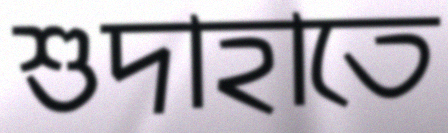
শুদাহাতে